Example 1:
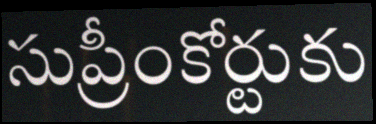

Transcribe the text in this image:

సుప్రీంకోర్టుకు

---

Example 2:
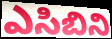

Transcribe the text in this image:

ఎసిబిని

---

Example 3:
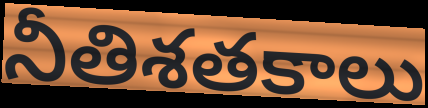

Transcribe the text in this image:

నీతిశతకాలు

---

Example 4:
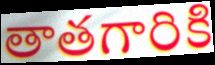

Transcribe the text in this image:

తాతగారికి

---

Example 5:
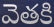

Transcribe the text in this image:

వెతకి